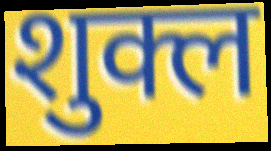
शुक्‍ल